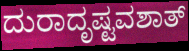
ದುರಾದೃಷ್ಟವಶಾತ್